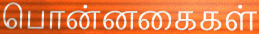
பொன்னகைகள்